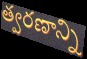
త్వరణాన్ని